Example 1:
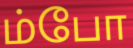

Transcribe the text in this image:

ம்போ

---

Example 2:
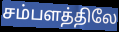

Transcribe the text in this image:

சம்பளத்திலே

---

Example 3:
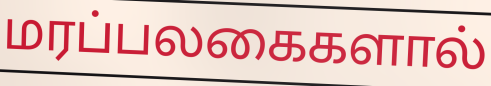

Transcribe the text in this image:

மரப்பலகைகளால்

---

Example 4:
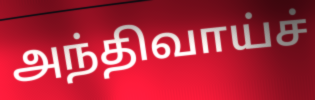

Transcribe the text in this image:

அந்திவாய்ச்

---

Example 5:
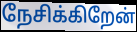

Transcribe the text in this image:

நேசிக்கிறேன்